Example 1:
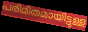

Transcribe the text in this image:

പരിമിതമായിട്ടുള്ള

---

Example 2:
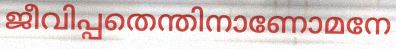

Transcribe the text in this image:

ജീവിപ്പതെന്തിനാണോമനേ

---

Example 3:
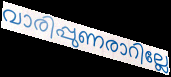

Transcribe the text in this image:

വാരിപ്പുണരാറില്ലേ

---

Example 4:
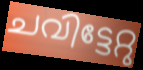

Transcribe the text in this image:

ചവിട്ടേറ്റു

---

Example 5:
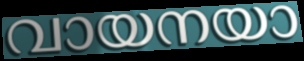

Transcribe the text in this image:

വായനയാ